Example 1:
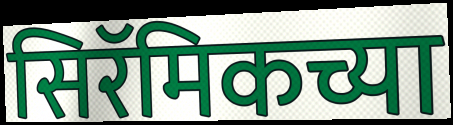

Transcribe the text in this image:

सिरॅमिकच्या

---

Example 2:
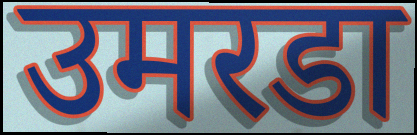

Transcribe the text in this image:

उमरडा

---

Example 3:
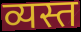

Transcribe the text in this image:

व्यस्त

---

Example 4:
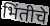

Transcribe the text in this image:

भिंतीचे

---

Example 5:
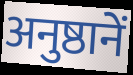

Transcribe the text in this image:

अनुष्ठानें